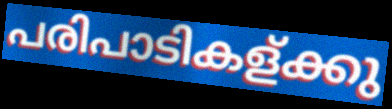
പരിപാടികള്ക്കു